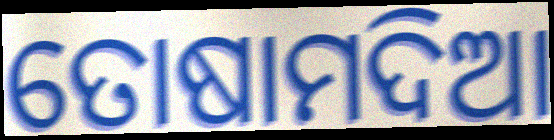
ତୋଷାମଦିଆ